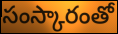
సంస్కారంతో